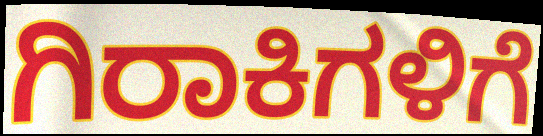
ಗಿರಾಕಿಗಳಿಗೆ